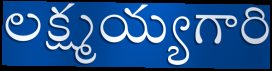
లక్ష్మయ్యగారి